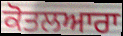
ਕੋਤਲਆਰਾ